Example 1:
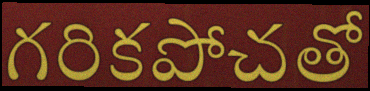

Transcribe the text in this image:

గరికపోచతో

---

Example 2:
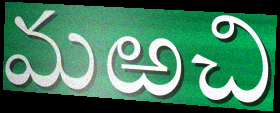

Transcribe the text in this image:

మఱచి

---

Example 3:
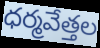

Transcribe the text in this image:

ధర్మవేత్తల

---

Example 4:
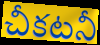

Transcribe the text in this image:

చీకటనీ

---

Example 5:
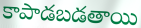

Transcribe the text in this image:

కాపాడబడతాయి